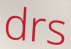
drs